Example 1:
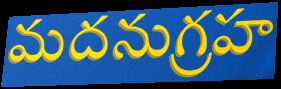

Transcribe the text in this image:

మదనుగ్రహ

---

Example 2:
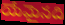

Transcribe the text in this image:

యేమైనది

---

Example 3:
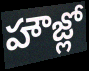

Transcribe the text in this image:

హౌజ్లో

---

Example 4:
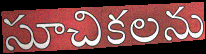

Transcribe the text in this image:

సూచికలను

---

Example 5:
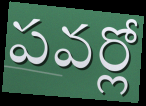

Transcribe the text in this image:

పవర్లో